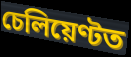
চেলিয়েণ্টত